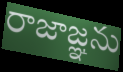
రాజాజ్ఞను